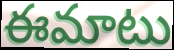
ఈమాటు